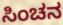
ಸಿಂಚನ